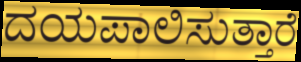
ದಯಪಾಲಿಸುತ್ತಾರೆ